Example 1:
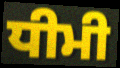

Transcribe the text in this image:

ਧੀਮੀ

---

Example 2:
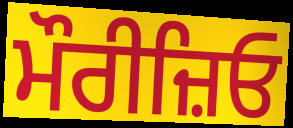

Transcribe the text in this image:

ਮੌਰੀਜ਼ਿਓ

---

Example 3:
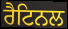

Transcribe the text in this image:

ਰੈਟਿਨਲ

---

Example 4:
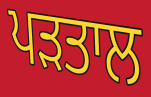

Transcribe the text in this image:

ਪੜਤਾਲ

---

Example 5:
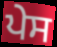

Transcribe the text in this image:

ਪੇਸ